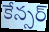
కేన్సర్